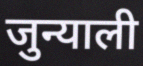
जुन्याली